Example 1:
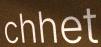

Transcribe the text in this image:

chhet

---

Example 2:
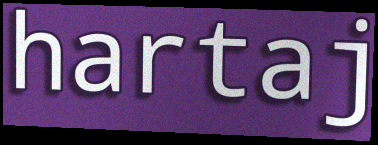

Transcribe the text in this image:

hartaj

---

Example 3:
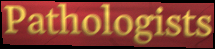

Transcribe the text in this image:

Pathologists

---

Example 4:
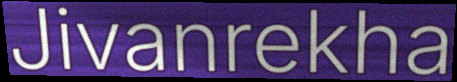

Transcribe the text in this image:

Jivanrekha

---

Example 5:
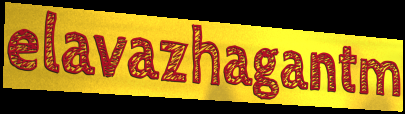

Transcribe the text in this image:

elavazhagantm